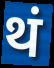
थं